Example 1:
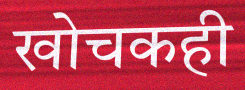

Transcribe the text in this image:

खोचकही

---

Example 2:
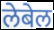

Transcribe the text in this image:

लेबेल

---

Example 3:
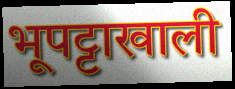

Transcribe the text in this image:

भूपट्टाखाली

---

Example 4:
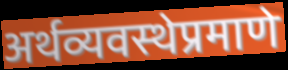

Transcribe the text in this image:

अर्थव्यवस्थेप्रमाणे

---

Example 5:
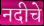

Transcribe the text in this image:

नदीचे